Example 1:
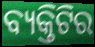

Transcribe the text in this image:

ବ୍ୟକ୍ତିଟିର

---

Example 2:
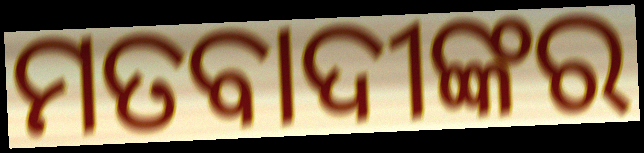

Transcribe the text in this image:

ମତବାଦୀଙ୍କର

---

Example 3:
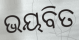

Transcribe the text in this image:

ଭୟବିତ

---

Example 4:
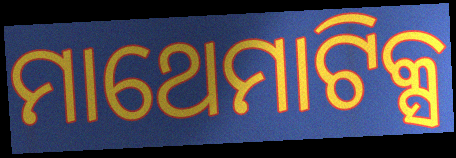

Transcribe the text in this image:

ମାଥେମାଟିକ୍ସ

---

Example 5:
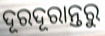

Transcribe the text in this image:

ଦୂରଦୂରାନ୍ତରୁ